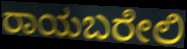
ರಾಯಬರೇಲಿ